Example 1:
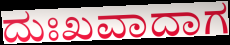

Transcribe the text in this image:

ದುಃಖವಾದಾಗ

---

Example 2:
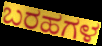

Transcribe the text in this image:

ಬರಹಗಳ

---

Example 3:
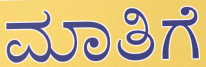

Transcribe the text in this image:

ಮಾತಿಗೆ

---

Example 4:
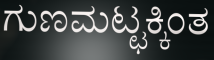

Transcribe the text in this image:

ಗುಣಮಟ್ಟಕ್ಕಿಂತ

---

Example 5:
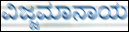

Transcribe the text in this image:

ವಿಜ್ಜಮಾನಾಯ